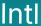
Intl